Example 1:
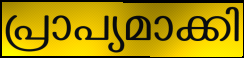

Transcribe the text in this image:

പ്രാപ്യമാക്കി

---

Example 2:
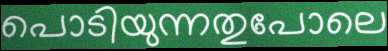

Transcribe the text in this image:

പൊടിയുന്നതുപോലെ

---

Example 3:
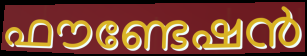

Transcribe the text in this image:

ഫൗണ്ടേഷൻ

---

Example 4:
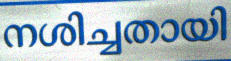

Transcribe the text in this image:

നശിച്ചതായി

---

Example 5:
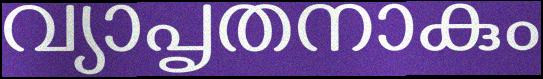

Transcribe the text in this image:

വ്യാപൃതനാകും